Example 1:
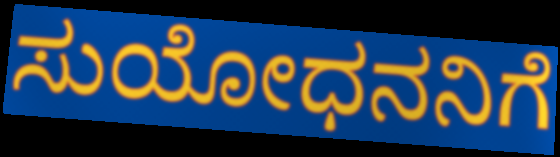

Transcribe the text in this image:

ಸುಯೋಧನನಿಗೆ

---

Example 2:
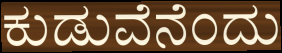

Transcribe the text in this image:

ಕುಡುವೆನೆಂದು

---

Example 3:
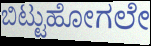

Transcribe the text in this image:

ಬಿಟ್ಟುಹೋಗಲೇ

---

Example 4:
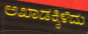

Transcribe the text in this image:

ಅಖಾಡಕ್ಕಿಳಿದು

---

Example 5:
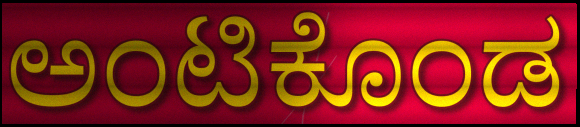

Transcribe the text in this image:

ಅಂಟಿಕೊಂಡ